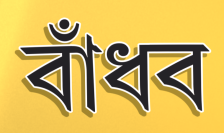
বাঁধব